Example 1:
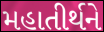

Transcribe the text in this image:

મહાતીર્થને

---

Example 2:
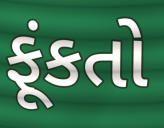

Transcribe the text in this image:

ફૂંકતો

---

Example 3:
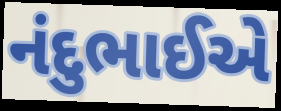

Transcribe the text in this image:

નંદુભાઈએ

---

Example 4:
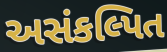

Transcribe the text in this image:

અસંકલ્પિત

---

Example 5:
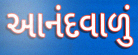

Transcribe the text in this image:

આનંદવાળું